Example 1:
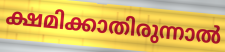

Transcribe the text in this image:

ക്ഷമിക്കാതിരുന്നാൽ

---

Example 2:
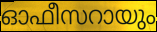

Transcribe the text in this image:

ഓഫീസറായും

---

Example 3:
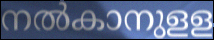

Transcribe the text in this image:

നൽകാനുളള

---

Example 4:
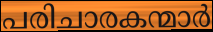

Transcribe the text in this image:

പരിചാരകന്മാർ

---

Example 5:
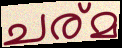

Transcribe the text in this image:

ചര്മ